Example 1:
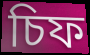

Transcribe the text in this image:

চিফ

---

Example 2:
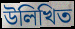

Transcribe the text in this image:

উলিখিত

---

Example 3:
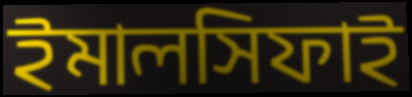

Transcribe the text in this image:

ইমালসিফাই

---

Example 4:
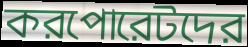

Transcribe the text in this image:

করপোরেটদের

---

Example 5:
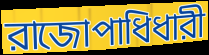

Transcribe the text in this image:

রাজোপাধিধারী